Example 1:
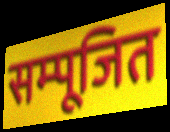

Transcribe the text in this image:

सम्पूजित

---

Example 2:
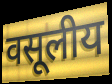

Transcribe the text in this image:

वसूलीय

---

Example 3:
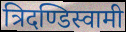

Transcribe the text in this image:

त्रिदण्डिस्वामी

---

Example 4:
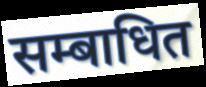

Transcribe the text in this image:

सम्बाधित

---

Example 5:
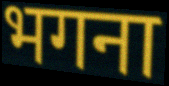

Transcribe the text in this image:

भगना